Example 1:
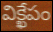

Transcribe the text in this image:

విక్ఖేపం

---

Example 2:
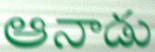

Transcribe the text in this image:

ఆనాడు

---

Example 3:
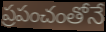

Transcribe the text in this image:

ప్రపంచంతోనే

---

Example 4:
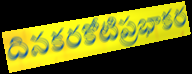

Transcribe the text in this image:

దినకరకోటిప్రభాకర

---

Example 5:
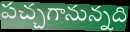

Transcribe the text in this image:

పచ్చగానున్నది